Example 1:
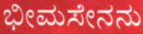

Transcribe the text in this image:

ಭೀಮಸೇನನು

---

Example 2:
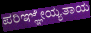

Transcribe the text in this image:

ಪರಿಞ್ಞೇಯ್ಯತಾಯ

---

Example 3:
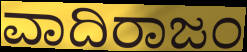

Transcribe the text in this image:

ವಾದಿರಾಜಂ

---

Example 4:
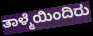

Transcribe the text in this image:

ತಾಳ್ಮೆಯಿಂದಿರು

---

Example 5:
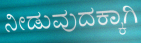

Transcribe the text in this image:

ನೀಡುವುದಕ್ಕಾಗಿ